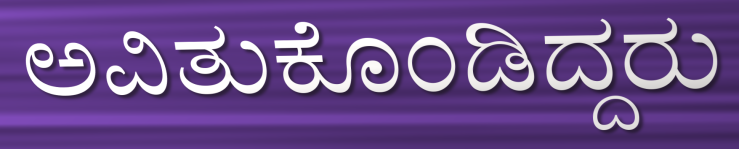
ಅವಿತುಕೊಂಡಿದ್ದರು